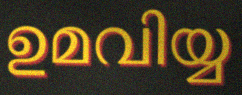
ഉമവിയ്യ